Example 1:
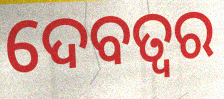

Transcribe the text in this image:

ଦେବତ୍ଵର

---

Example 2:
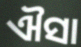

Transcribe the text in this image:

ଐସା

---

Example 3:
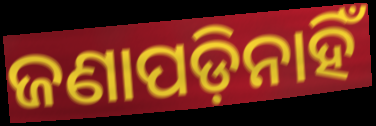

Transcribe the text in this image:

ଜଣାପଡ଼ିନାହିଁ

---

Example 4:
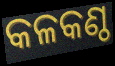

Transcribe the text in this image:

କଳକଣ୍ଠ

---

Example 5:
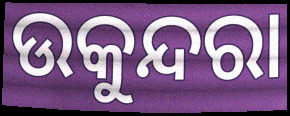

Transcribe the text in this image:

ଉକୁନ୍ଦରା